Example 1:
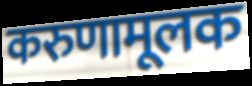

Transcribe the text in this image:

करुणामूलक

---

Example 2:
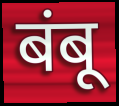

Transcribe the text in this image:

बंबू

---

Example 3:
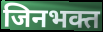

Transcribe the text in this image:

जिनभक्त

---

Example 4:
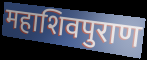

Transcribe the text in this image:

महाशिवपुराण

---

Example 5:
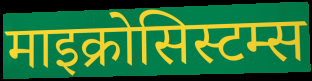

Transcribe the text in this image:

माइक्रोसिस्टम्स